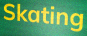
Skating